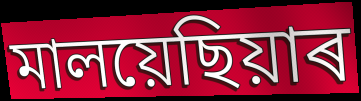
মালয়েছিয়াৰ